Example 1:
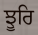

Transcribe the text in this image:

ਝੂਰਿ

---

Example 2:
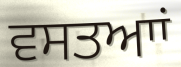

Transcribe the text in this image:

ਵਸਤਆਾਂ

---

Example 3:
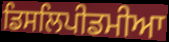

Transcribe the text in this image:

ਡਿਸਲਿਪੀਡਮੀਆ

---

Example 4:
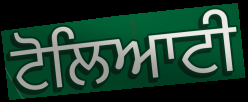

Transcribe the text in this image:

ਟੋਲਿਆਟੀ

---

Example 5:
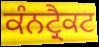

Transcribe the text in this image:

ਕੰਨਟ੍ਰੈਕਟ